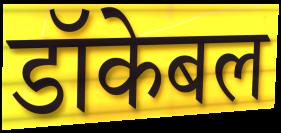
डॉकेबल